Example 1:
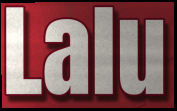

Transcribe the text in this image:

Lalu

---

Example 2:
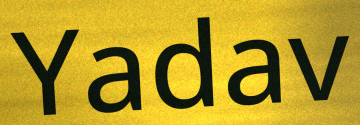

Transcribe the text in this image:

Yadav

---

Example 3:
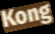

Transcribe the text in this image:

Kong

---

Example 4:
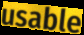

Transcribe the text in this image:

usable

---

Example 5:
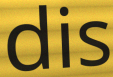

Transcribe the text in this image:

dis